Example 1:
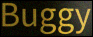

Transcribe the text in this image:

Buggy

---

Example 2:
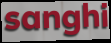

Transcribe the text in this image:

sanghi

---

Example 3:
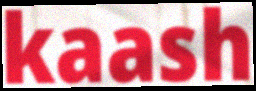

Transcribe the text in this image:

kaash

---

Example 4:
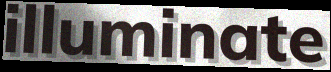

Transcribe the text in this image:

illuminate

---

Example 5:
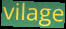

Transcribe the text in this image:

vilage